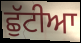
ਛੁੱਟੀਆ